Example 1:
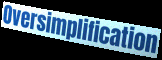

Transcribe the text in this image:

Oversimplification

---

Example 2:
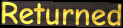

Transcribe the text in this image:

Returned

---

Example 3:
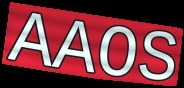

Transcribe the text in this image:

AAOS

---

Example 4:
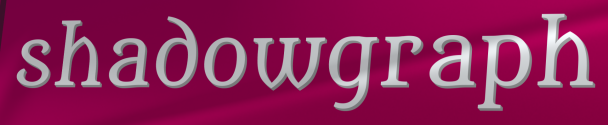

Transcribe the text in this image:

shadowgraph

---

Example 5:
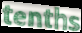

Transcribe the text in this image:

tenths